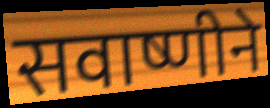
सवाष्णीने